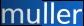
muller